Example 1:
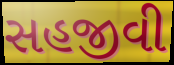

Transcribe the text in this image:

સહજીવી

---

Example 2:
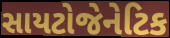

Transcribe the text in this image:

સાયટોજેનેટિક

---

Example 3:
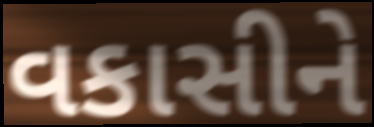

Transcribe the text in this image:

વકાસીને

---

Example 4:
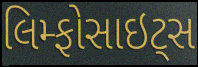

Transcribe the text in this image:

લિમ્ફોસાઇટ્સ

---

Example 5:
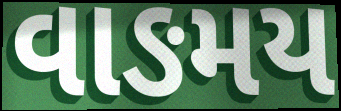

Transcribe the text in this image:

વાઙમય